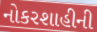
નોકરશાહીની